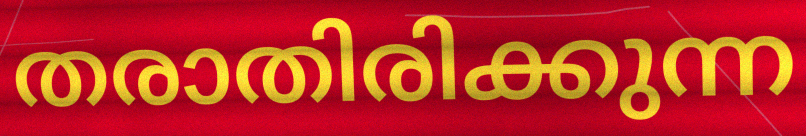
തരാതിരിക്കുന്ന